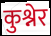
कुश्नेर